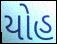
યોહ